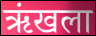
ऋंखला